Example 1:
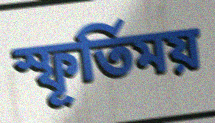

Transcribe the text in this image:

স্ফূর্তিময়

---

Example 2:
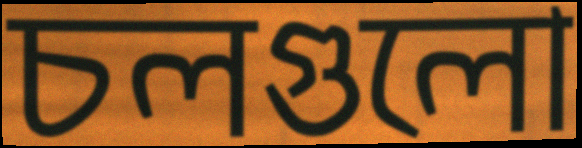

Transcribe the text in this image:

চলগুলো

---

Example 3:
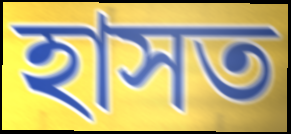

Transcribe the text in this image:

হাসত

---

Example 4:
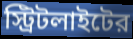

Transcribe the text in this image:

স্ট্রিটলাইটের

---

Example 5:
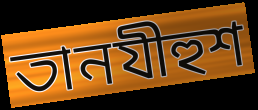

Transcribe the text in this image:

তানযীহুশ